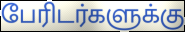
பேரிடர்களுக்கு